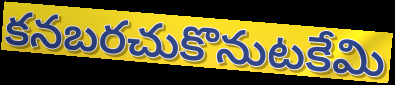
కనబరచుకొనుటకేమి